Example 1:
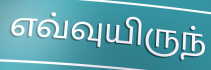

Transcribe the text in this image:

எவ்வுயிருந்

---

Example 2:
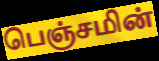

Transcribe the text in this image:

பெஞ்சமின்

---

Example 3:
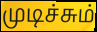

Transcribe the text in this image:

முடிச்சும்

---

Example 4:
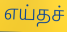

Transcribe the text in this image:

எய்தச்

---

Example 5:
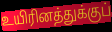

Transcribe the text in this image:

உயிரினத்துக்குப்